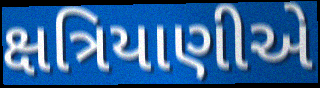
ક્ષત્રિયાણીએ